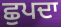
ਛੁਪਦਾ